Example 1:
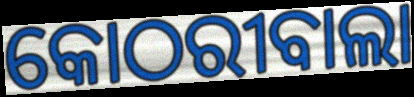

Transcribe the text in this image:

କୋଠରୀବାଲା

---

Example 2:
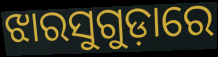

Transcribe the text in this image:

ଝାରସୁଗୁଡ଼ାରେ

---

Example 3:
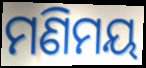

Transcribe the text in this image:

ମଣିମୟ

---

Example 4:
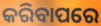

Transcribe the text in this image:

କରିବାପରେ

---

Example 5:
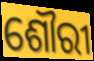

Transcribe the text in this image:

ଶୌରୀ